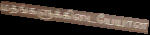
மதங்களுக்கிடையேயான